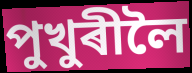
পুখুৰীলৈ